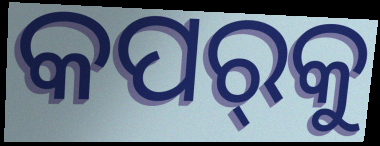
କପର୍‌କୁ